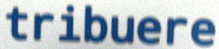
tribuere